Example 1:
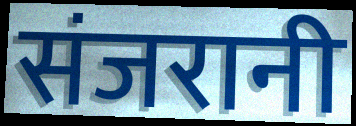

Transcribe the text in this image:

संजरानी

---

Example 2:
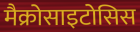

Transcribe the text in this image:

मैक्रोसाइटोसिस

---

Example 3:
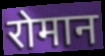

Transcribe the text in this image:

रोमान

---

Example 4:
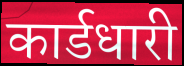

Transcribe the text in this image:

कार्डधारी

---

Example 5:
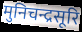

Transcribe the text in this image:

मुनिचन्द्रसूरि